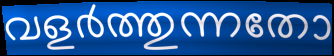
വളർത്തുന്നതോ